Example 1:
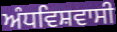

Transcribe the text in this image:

ਅੰਧਵਿਸ਼ਵਾਸੀ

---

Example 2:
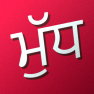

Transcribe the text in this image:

ਮੁੱਧ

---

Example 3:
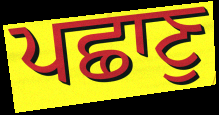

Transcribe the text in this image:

ਪਛਾਣੁ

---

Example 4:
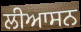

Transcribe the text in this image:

ਲੀਆਸਨ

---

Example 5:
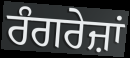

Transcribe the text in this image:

ਰੰਗਰੇਜ਼ਾਂ